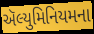
ઍલ્યુમિનિયમના